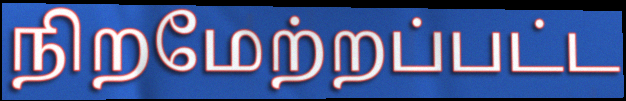
நிறமேற்றப்பட்ட